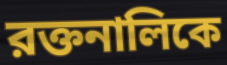
রক্তনালিকে